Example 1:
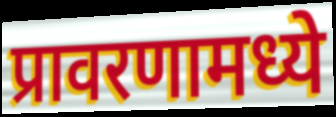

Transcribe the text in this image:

प्रावरणामध्ये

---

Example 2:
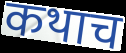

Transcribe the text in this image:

कथाच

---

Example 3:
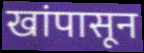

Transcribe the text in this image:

खांपासून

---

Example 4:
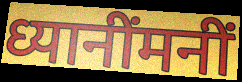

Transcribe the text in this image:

ध्यानींमनीं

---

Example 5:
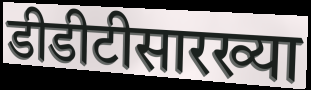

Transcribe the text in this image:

डीडीटीसारख्या